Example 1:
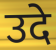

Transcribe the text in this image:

उदे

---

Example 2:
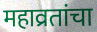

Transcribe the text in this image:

महाव्रतांचा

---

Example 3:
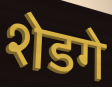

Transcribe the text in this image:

शेडगे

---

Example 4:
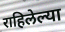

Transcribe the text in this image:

राहिलेल्या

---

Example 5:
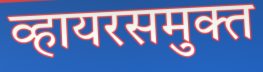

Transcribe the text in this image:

व्हायरसमुक्त